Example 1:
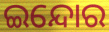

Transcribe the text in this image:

ଇନ୍ଦୋର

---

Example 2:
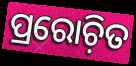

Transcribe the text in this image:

ପ୍ରରୋଚ଼ିତ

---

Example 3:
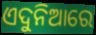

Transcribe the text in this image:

ଏଦୁନିଆରେ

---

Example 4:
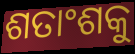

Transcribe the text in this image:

ଶତାଂଶକୁ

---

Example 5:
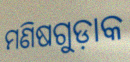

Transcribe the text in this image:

ମଣିଷଗୁଡ଼ାକ